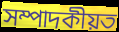
সম্পাদকীয়ত